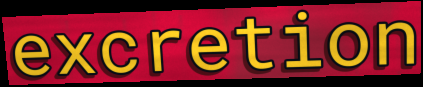
excretion